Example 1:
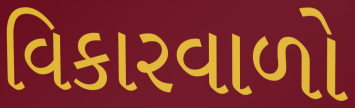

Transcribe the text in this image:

વિકારવાળો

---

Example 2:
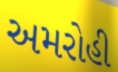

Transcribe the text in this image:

અમરોહી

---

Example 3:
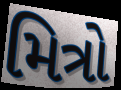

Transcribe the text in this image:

મિત્રો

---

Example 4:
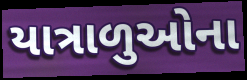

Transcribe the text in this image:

યાત્રાળુઓના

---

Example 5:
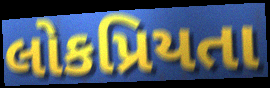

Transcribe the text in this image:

લોકપ્રિયતા